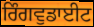
ਰਿੰਗਵੁਡਾਈਟ